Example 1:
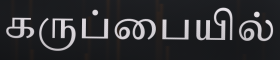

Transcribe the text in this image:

கருப்பையில்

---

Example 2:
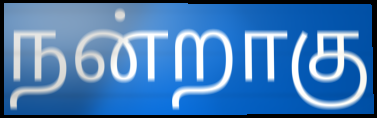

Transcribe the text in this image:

நன்றாகு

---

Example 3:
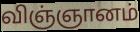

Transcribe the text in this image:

விஞ்ஞானம்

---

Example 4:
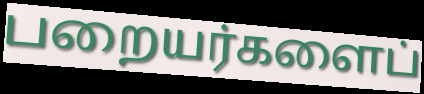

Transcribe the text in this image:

பறையர்களைப்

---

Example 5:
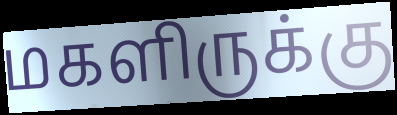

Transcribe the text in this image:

மகளிருக்கு